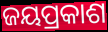
ଜୟପ୍ରକାଶ